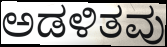
ಅಡಳಿತವು